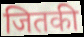
जितकी